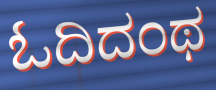
ಓದಿದಂಥ